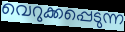
വെറുക്കപ്പെടുന്ന